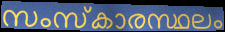
സംസ്കാരസ്ഥലം